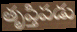
తృప్తిపడు